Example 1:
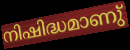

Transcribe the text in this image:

നിഷിദ്ധമാണു്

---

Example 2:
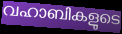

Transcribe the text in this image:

വഹാബികളുടെ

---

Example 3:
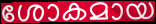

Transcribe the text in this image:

ശോകമായ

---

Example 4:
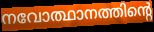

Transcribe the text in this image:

നവോത്ഥാനത്തിന്റെ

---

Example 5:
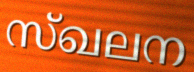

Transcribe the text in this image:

സ്ഖലന